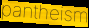
pantheism